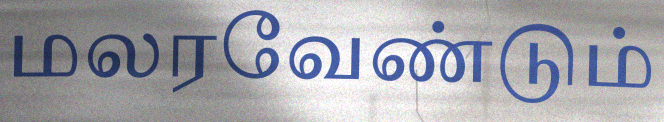
மலரவேண்டும்